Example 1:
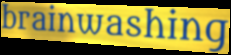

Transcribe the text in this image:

brainwashing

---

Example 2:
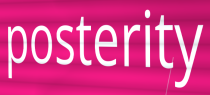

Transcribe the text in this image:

posterity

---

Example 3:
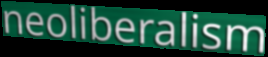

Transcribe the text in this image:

neoliberalism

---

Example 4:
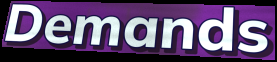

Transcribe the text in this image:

Demands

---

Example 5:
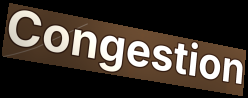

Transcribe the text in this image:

Congestion